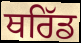
ਥਰਿੱਡ